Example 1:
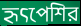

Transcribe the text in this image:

হৃৎপেশির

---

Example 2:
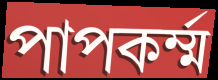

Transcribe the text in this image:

পাপকর্ম্ম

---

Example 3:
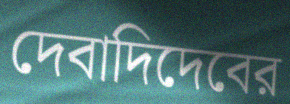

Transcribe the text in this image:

দেবাদিদেবের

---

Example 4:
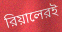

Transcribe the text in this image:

রিয়ালেরই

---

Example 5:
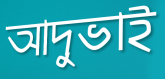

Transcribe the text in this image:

আদুভাই